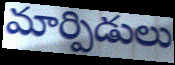
మార్పిడులు